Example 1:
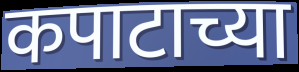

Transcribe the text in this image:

कपाटाच्या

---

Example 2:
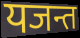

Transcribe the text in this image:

यजन्त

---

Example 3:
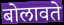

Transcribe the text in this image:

बोलावते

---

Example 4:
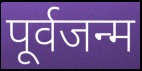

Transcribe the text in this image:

पूर्वजन्म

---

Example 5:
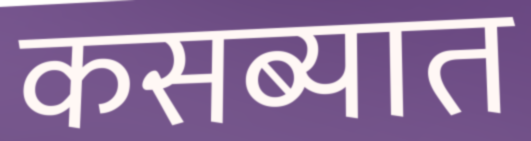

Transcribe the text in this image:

कसब्यात